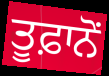
ਤੂਫ਼ਾਨੋਂ